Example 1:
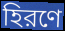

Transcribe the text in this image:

হিরণে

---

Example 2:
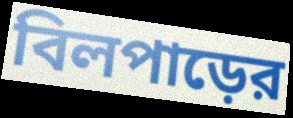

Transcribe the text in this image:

বিলপাড়ের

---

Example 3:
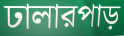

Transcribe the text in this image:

ঢালারপাড়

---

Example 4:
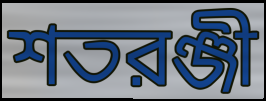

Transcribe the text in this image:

শতরঞ্জী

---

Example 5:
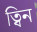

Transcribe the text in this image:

ত্বিন